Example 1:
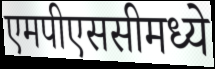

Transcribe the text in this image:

एमपीएससीमध्ये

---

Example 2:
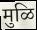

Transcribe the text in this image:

मुळि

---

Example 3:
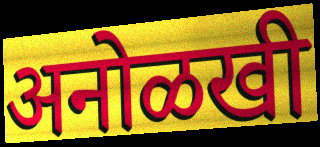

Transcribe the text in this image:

अनोळखी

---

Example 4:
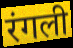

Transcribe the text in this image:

रंगली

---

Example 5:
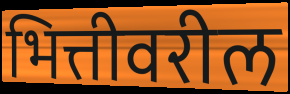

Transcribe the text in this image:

भित्तीवरील